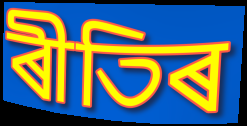
ৰীতিৰ